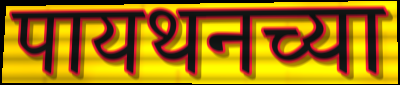
पायथनच्या